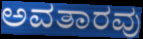
ಅವತಾರವು